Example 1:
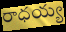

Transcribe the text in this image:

రాధయ్య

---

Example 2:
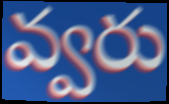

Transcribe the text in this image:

వ్వరు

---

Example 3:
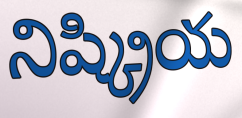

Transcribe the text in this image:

నిష్క్రియ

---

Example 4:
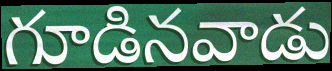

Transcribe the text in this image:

గూడినవాడు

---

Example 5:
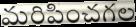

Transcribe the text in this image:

మరిపించగల